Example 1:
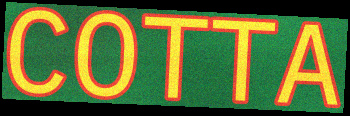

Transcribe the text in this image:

COTTA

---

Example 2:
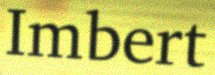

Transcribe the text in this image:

Imbert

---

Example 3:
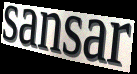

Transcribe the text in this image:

sansar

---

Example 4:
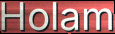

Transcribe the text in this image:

Holam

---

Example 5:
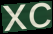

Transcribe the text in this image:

xc